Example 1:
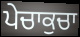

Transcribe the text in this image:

ਪੇਚਾਕੁਚਾ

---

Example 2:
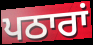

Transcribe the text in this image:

ਪਠਾਰਾਂ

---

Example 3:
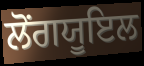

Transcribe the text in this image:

ਲੋਂਗਯੂਇਲ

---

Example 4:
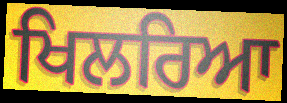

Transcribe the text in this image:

ਖਿਲਰਿਆ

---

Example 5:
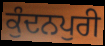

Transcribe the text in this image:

ਕੁੰਦਨਪੁਰੀ